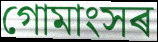
গোমাংসৰ